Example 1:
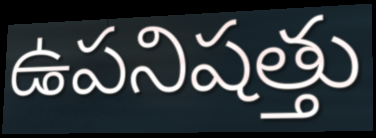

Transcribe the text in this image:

ఉపనిషత్తు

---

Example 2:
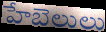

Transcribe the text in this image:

హేబెలులు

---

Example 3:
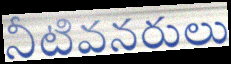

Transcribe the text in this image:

నీటివనరులు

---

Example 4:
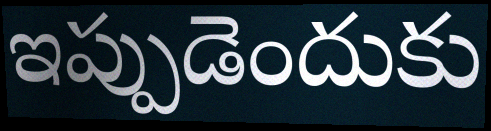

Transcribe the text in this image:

ఇప్పుడెందుకు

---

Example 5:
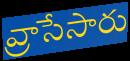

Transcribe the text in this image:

వ్రాసేసారు